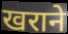
खराने